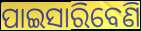
ପାଇସାରିବେଣି